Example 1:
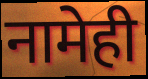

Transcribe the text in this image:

नामेही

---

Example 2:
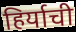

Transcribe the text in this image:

हिर्याची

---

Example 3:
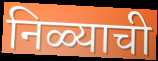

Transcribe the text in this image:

निळ्याची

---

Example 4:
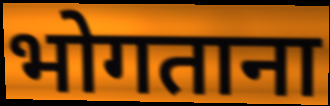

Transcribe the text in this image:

भोगताना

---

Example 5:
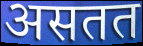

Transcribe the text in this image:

असतत